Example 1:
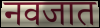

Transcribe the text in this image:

नवजात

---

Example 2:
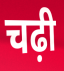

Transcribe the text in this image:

चढ़ी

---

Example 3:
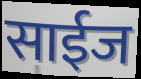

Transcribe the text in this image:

साईज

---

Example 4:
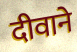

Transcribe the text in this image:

दीवाने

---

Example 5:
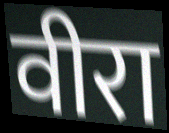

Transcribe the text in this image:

वीरा